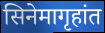
सिनेमागृहांत